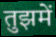
तुझमें